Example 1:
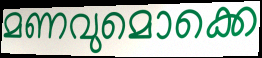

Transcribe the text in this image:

മണവുമൊക്കെ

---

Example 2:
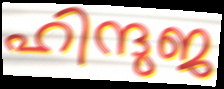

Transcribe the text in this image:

ഹിന്ദുജ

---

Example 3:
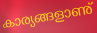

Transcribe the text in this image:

കാര്യങ്ങളാണു്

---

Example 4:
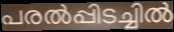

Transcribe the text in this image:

പരൽപ്പിടച്ചിൽ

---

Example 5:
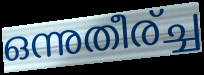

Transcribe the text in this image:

ഒന്നുതീര്ച്ച